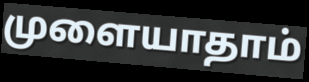
முளையாதாம்